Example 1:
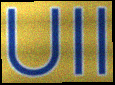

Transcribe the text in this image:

UII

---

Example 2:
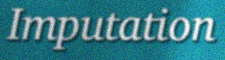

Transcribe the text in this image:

Imputation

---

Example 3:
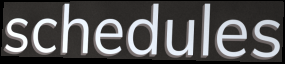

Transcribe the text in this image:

schedules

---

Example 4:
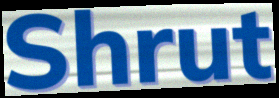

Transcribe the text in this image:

Shrut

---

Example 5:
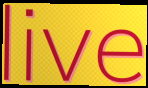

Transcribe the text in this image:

live